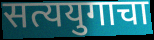
सत्ययुगाचा